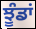
ਝੂੰਡਾਂ